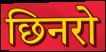
छिनरो